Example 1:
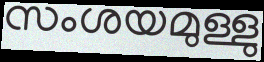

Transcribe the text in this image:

സംശയമുള്ളു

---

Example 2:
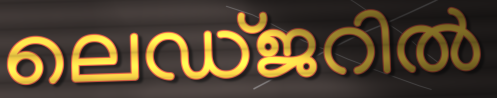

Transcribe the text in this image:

ലെഡ്ജറിൽ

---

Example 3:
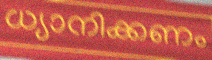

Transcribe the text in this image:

ധ്യാനിക്കണം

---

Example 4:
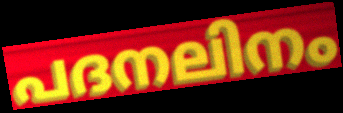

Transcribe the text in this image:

പദനലിനം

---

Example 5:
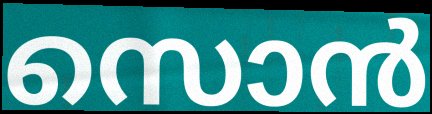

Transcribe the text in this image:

സൊൻ